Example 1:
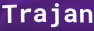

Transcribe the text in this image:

Trajan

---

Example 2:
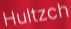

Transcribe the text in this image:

Hultzch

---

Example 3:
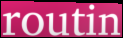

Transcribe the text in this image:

routin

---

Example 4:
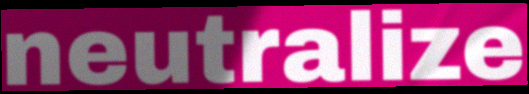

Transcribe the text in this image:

neutralize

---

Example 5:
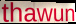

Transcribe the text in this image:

thawun